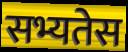
सभ्यतेस